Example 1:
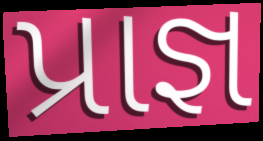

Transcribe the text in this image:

પ્રાજ્ઞ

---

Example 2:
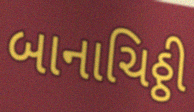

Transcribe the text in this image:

બાનાચિઠ્ઠી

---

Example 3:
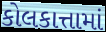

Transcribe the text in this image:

કોલકાત્તામાં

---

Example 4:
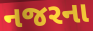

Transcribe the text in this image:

નજરના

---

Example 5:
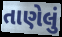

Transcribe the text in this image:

તાણેલું